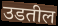
उडतील